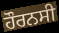
ਹੌਰਨਸੀ